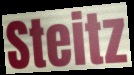
Steitz